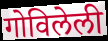
गोविलेली